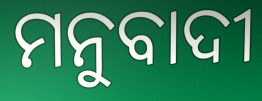
ମନୁବାଦୀ